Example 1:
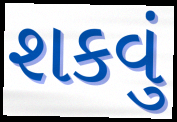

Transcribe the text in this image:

શકવું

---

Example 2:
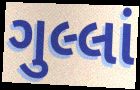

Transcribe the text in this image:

ગુલ્લાં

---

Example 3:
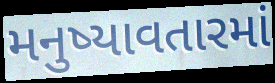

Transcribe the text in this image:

મનુષ્યાવતારમાં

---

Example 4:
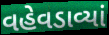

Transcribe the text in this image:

વહેવડાવ્યાં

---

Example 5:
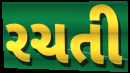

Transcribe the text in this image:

રચતી